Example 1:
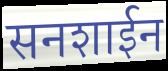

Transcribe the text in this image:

सनशाईन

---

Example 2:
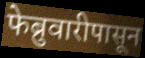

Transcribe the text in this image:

फेब्रुवारीपासून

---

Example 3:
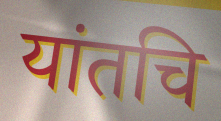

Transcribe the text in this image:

यांतचि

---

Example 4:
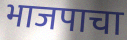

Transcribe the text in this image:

भाजपाचा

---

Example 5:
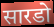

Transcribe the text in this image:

सारडो